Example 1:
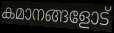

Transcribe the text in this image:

കമാനങ്ങളോട്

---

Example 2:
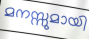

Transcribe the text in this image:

മനസ്സുമായി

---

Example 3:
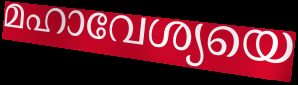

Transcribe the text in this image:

മഹാവേശ്യയെ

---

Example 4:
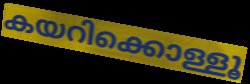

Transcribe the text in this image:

കയറിക്കൊള്ളൂ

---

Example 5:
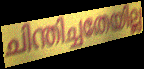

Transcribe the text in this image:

ചിന്തിച്ചതേയില്ല